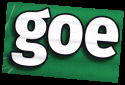
goe